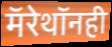
मॅरेथॉनही